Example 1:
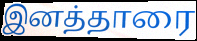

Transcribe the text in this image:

இனத்தாரை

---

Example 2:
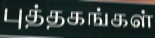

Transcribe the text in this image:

புத்தகங்கள்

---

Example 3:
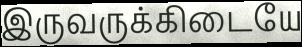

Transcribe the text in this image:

இருவருக்கிடையே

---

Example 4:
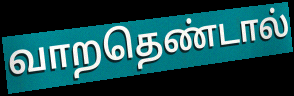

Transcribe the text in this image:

வாறதெண்டால்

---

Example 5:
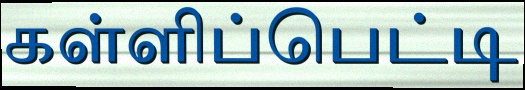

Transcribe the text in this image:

கள்ளிப்பெட்டி